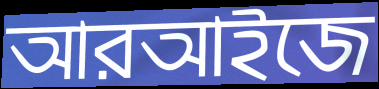
আরআইজে